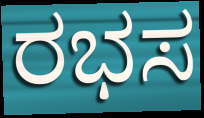
ರಭಸ